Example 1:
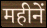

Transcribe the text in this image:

महीनें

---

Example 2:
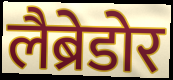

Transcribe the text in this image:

लैब्रेडोर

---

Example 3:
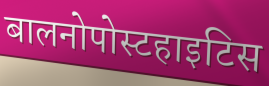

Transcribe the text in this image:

बालनोपोस्टहाइटिस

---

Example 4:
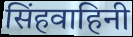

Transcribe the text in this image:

सिंहवाहिनी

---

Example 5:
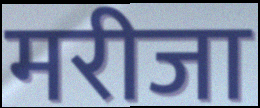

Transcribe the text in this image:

मरीजा